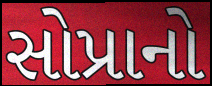
સોપ્રાનો